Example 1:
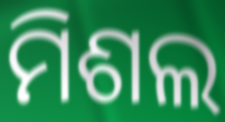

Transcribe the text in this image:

ମିଶଲ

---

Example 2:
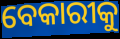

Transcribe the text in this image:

ବେକାରୀକୁ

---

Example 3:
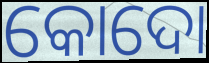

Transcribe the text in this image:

କୋଦୋ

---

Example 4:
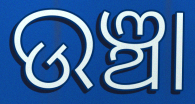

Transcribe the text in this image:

ଉଞ୍ଚା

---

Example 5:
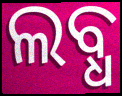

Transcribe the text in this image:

ଲବ୍ଧ